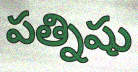
పత్నిషు